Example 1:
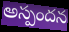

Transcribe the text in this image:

అస్పందన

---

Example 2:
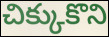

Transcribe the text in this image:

చిక్కుకొని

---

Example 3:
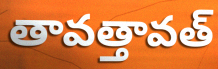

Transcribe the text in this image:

తావత్తావత్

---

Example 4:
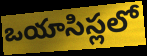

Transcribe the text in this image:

ఒయాసిస్లలో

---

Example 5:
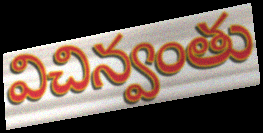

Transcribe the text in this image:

విచిన్వంతు